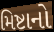
મિષ્ટાનો